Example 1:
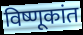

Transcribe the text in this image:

विष्णूकांत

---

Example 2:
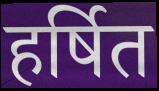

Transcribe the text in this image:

हर्षित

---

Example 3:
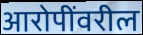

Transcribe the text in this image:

आरोपींवरील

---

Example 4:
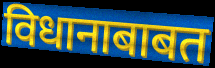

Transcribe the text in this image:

विधानाबाबत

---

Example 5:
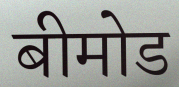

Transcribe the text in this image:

बीमोड